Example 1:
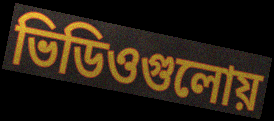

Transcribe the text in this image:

ভিডিওগুলোয়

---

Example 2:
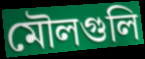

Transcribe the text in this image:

মৌলগুলি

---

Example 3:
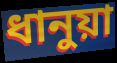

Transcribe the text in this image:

ধানুয়া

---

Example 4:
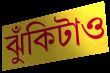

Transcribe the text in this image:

ঝুঁকিটাও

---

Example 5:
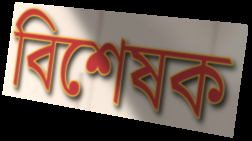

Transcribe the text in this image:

বিশেষক